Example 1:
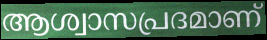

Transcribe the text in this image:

ആശ്വാസപ്രദമാണ്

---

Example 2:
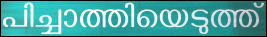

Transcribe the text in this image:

പിച്ചാത്തിയെടുത്ത്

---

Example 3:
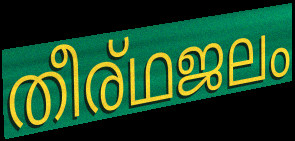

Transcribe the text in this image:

തീര്ഥജലം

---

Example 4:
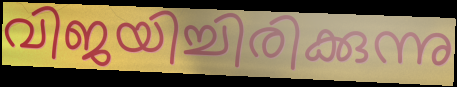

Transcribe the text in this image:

വിജയിച്ചിരിക്കുന്നു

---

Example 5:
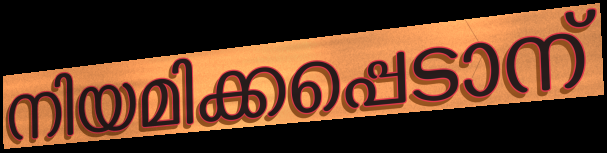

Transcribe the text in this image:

നിയമിക്കപ്പെടാന്